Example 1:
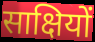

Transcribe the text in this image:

साक्षियों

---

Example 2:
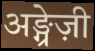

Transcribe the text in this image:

अङ्ग्रेज़ी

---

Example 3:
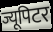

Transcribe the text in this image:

ज्यूपिटर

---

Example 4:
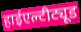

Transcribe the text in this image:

हाईएल्टीट्यूड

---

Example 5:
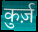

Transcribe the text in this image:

कुर्ज़